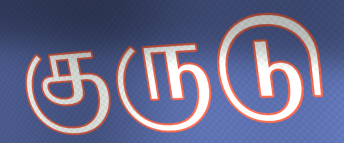
குருடு